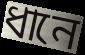
ধানে